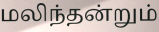
மலிந்தன்றும்